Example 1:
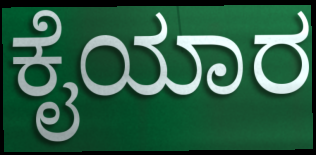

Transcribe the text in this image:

ಕೈಯಾರ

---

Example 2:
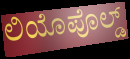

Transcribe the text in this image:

ಲಿಯೊಪೊಲ್ಡ್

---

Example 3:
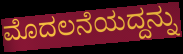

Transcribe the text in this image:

ಮೊದಲನೆಯದ್ದನ್ನು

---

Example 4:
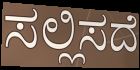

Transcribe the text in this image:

ಸಲ್ಲಿಸದೆ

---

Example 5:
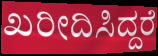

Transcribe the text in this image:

ಖರೀದಿಸಿದ್ದರೆ